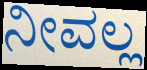
ನೀವಲ್ಲ